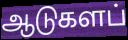
ஆடுகளப்